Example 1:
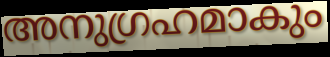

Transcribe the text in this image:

അനുഗ്രഹമാകും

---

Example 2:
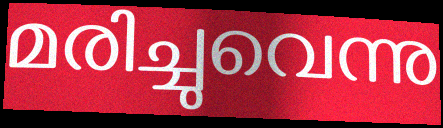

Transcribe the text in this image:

മരിച്ചുവെന്നു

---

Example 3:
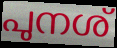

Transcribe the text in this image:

പുനശ്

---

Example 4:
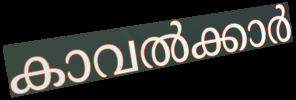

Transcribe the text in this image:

കാവൽക്കാർ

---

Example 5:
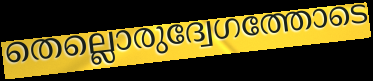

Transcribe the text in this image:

തെല്ലൊരുദ്വേഗത്തോടെ